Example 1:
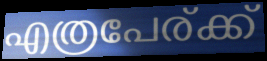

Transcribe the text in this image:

എത്രപേര്ക്ക്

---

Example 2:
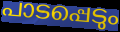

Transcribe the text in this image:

പാടപ്പെടും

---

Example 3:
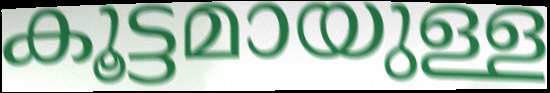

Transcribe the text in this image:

കൂട്ടമായുള്ള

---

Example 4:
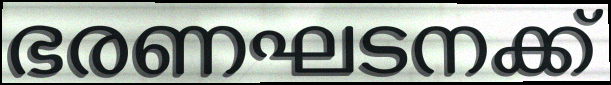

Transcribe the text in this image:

ഭരണഘടനക്ക്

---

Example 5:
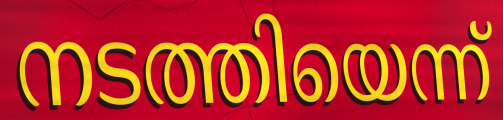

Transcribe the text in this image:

നടത്തിയെന്ന്